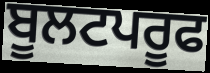
ਬੂਲਟਪਰੂਫ